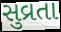
સુવ્રતા